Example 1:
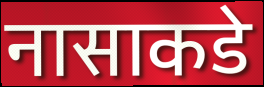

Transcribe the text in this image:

नासाकडे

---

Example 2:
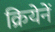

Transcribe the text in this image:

क्रियेनें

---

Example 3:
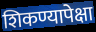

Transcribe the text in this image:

शिकण्यापेक्षा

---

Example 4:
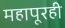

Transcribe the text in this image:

महापूरही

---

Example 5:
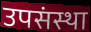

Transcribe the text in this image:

उपसंस्था